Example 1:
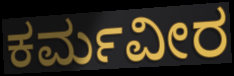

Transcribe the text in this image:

ಕರ್ಮವೀರ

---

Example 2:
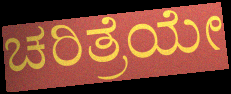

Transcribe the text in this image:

ಚರಿತ್ರೆಯೇ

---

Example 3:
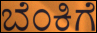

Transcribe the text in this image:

ಬೆಂಕಿಗೆ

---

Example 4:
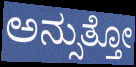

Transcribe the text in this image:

ಅನ್ಸುತ್ತೋ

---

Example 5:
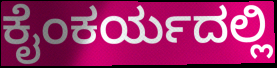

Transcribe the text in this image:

ಕೈಂಕರ್ಯದಲ್ಲಿ